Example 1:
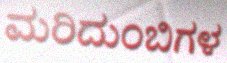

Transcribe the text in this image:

ಮರಿದುಂಬಿಗಳ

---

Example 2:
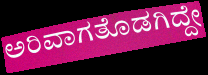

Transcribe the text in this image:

ಅರಿವಾಗತೊಡಗಿದ್ದೇ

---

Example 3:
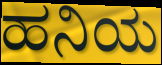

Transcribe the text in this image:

ಹನಿಯ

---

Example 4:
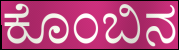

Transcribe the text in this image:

ಕೊಂಬಿನ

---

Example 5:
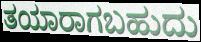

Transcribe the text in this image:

ತಯಾರಾಗಬಹುದು